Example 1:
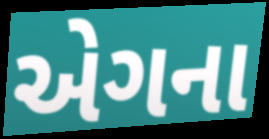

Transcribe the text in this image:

એગના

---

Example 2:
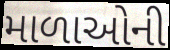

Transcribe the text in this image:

માળાઓની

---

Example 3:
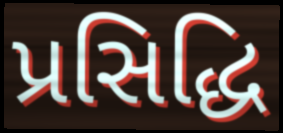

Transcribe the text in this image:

પ્રસિદ્ધિ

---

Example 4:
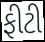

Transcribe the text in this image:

ફીટી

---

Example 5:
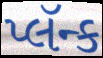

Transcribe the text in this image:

પ્લૅન્ક